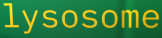
lysosome